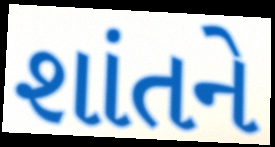
શાંતને